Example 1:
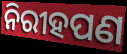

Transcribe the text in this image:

ନିରୀହପଣ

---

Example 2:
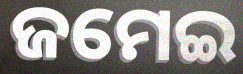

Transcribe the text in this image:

ଜମେଇ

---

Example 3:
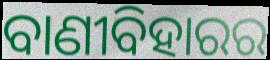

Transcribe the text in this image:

ବାଣୀବିହାରର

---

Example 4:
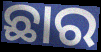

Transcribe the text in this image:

ଛାର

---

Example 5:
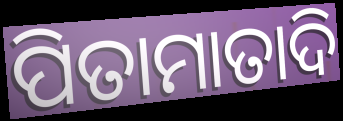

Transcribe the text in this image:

ପିତାମାତାଦି